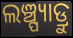
ଲଞ୍ଚ୍ପ୍ୟାଡ୍ରୁ